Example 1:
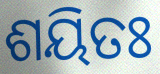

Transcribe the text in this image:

ଶୟିତଃ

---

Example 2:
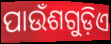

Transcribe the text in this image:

ପାଉଁଶଗୁଡ଼ିଏ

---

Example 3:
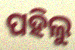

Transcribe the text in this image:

ପହିଲୁ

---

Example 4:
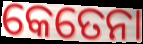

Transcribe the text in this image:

କେତେନା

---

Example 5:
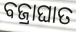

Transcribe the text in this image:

ବଜ୍ରାଘାତ